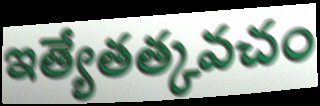
ఇత్యేతత్కవచం